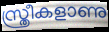
സ്ത്രീകളാണു